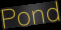
Pond